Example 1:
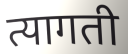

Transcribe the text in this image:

त्यागती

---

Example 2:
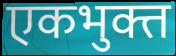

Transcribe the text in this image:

एकभुक्त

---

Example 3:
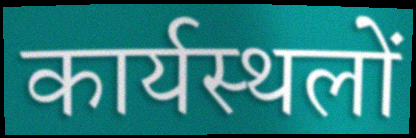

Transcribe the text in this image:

कार्यस्थलों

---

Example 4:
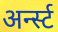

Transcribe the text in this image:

अर्न्स्ट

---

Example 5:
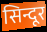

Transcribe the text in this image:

सिन्दूर